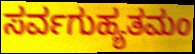
ಸರ್ವಗುಹ್ಯತಮಂ